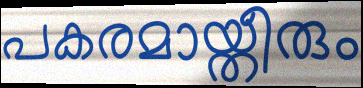
പകരമായ്തീരും